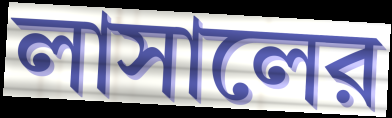
লাসালের